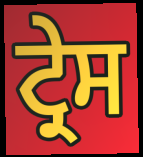
ਟ੍ਰੇਸ